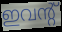
ഇവന്റ്